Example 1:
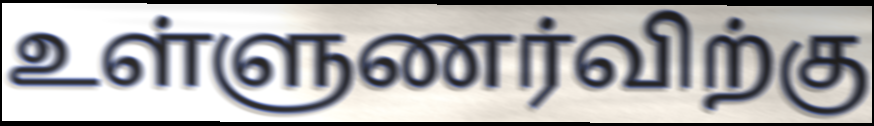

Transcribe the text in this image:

உள்ளுணர்விற்கு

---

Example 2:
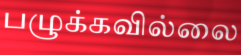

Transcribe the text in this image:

பழுக்கவில்லை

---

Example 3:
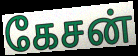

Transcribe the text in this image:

கேசன்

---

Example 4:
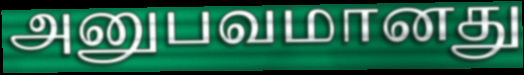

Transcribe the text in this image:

அனுபவமானது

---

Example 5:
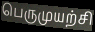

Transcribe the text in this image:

பெருமுயற்சி